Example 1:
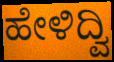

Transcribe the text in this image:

ಹೇಳಿದ್ವಿ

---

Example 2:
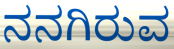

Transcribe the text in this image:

ನನಗಿರುವ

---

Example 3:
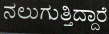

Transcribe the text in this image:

ನಲುಗುತ್ತಿದ್ದಾರೆ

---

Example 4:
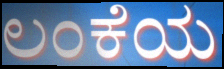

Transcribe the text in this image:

ಲಂಕೆಯ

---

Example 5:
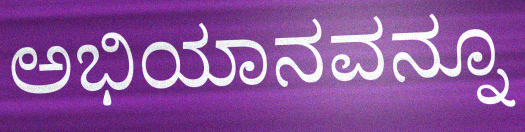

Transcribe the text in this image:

ಅಭಿಯಾನವನ್ನೂ